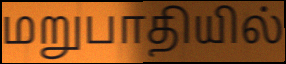
மறுபாதியில்